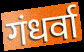
गंधर्वा